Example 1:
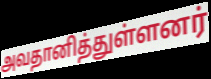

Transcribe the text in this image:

அவதானித்துள்ளனர்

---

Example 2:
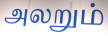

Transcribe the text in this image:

அலறும்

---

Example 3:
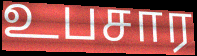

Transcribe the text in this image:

உபசார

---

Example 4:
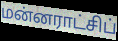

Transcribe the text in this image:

மன்னராட்சிப்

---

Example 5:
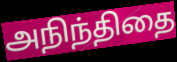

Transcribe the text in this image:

அநிந்திதை